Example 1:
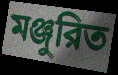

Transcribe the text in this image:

মঞ্জুরিত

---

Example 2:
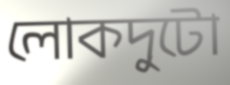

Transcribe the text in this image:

লোকদুটো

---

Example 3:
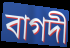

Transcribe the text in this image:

বাগদী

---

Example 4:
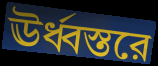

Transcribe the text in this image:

ঊর্ধ্বস্তরে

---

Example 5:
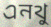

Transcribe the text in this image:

এনথু